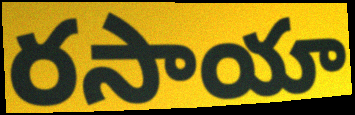
రసాయా